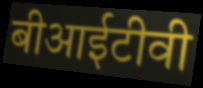
बीआईटीवी